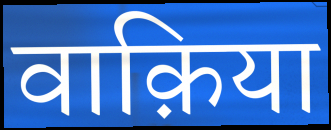
वाक़िया